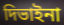
দিভাইনা